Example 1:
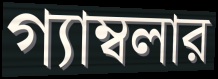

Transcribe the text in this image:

গ্যাম্বলার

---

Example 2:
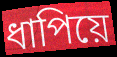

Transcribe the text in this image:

ধাপিয়ে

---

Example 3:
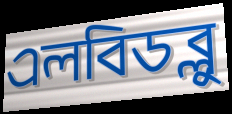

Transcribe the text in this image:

এলবিডব্লু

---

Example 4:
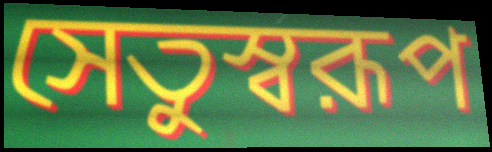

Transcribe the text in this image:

সেতুস্বরূপ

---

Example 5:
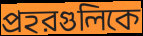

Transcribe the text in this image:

প্রহরগুলিকে